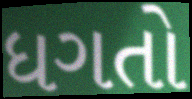
ધગતો